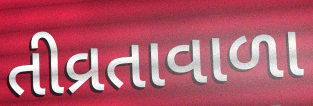
તીવ્રતાવાળા